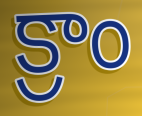
క్రాం